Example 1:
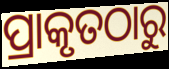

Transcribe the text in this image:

ପ୍ରାକୃତଠାରୁ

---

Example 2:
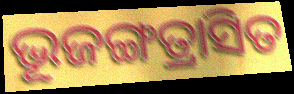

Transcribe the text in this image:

ଭୂଜଙ୍ଗତ୍ରାସିତ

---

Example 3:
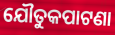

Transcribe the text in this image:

ଯୌତୁକପାଟଣା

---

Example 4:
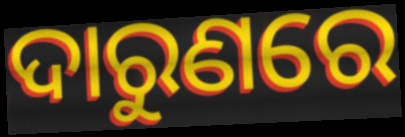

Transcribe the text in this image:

ଦାରୁଣରେ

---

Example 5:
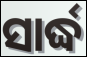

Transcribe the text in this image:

ସାର୍ଦ୍ଧ